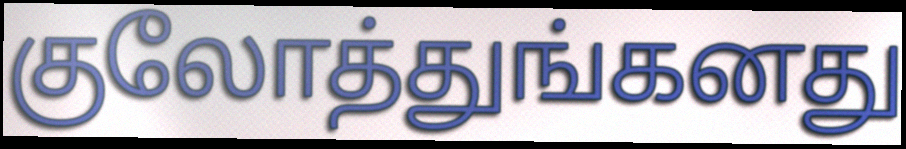
குலோத்துங்கனது